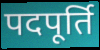
पदपूर्ति